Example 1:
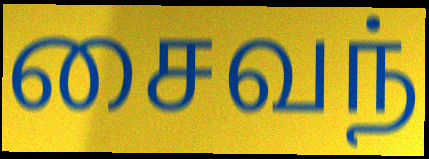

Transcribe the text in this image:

சைவந்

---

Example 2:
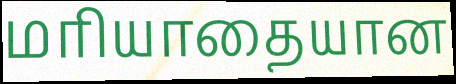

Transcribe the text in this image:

மரியாதையான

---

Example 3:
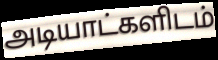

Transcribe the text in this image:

அடியாட்களிடம்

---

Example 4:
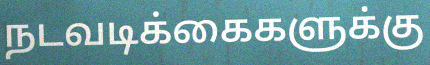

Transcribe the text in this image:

நடவடிக்கைகளுக்கு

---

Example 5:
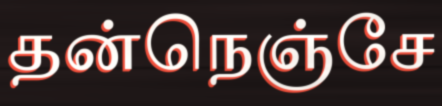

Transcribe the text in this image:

தன்நெஞ்சே